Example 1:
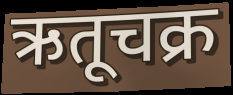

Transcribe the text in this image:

ऋतूचक्र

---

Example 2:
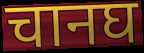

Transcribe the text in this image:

चानघ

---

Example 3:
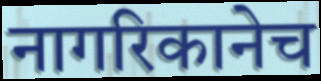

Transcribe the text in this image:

नागरिकानेच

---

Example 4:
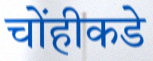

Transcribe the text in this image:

चोंहीकडे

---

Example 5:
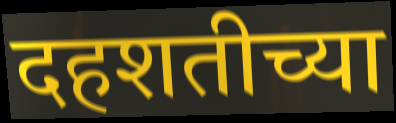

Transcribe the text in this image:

दहशतीच्या